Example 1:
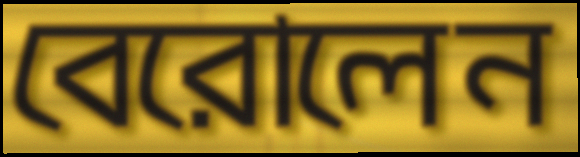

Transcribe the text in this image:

বেরোলেন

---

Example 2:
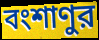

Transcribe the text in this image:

বংশাণুর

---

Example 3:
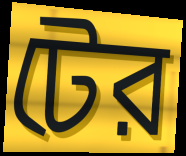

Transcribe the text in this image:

টের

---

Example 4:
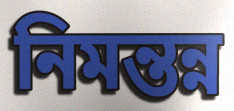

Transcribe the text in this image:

নিমন্তন্ন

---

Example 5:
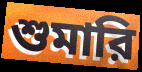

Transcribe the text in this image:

শুমারি